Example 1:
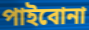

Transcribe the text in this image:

পাইবোনা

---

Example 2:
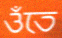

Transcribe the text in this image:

ওঁতে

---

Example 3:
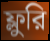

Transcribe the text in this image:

ফ্লুরি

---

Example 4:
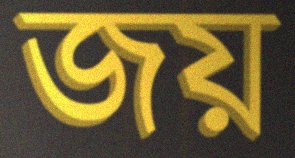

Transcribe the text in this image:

জয়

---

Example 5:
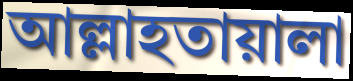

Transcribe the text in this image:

আল্লাহতায়ালা